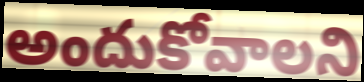
అందుకోవాలని